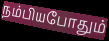
நம்பியபோதும்